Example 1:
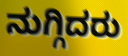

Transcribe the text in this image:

ನುಗ್ಗಿದರು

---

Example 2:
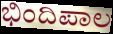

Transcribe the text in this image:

ಭಿಂದಿಪಾಲ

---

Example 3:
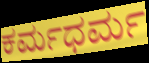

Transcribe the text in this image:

ಕರ್ಮಧರ್ಮ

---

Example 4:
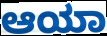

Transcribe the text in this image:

ಆಯಾ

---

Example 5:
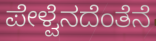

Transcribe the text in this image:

ಪೇಳ್ವೆನದೆಂತೆನೆ